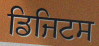
ਡਿਜਿਟਸ